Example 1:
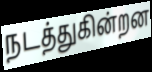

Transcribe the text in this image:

நடத்துகின்றன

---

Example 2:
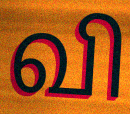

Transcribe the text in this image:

வி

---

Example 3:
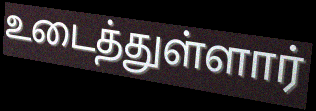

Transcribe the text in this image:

உடைத்துள்ளார்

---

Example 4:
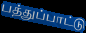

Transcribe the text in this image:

பத்துப்பாட்டு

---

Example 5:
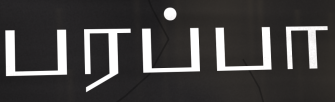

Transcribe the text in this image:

பரப்பா